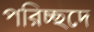
পরিচ্ছদে